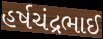
હર્ષચંદ્રભાઈ